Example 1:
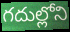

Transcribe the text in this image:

గదుల్లోని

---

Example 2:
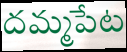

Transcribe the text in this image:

దమ్మపేట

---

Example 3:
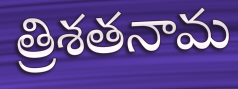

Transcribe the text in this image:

త్రిశతనామ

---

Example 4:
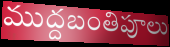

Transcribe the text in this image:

ముద్దబంతిపూలు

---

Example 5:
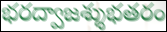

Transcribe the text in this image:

భరద్వాజశ్శుభతరం